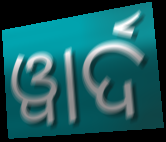
ୱାର୍ଦ